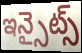
ఇన్సైట్స్